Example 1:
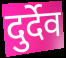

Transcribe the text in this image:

दुर्देव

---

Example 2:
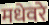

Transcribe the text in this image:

मधेवरे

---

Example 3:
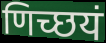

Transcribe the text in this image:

णिच्छयं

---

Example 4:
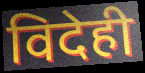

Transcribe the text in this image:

विदेही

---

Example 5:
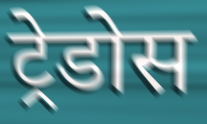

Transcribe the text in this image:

ट्रेडोस